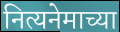
नित्यनेमाच्या